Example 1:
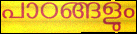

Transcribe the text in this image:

പാഠങ്ങളും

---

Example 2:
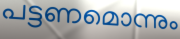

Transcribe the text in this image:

പട്ടണമൊന്നും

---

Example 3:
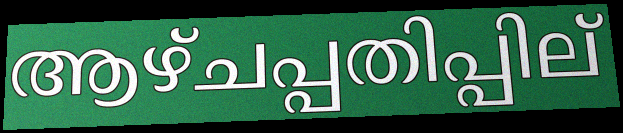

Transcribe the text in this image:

ആഴ്ചപ്പതിപ്പില്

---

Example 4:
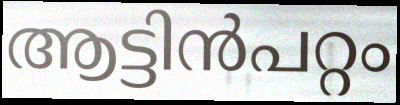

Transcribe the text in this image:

ആട്ടിൻപറ്റം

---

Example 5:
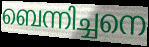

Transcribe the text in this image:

ബെന്നിച്ചനെ